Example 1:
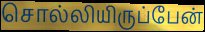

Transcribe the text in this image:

சொல்லியிருப்பேன்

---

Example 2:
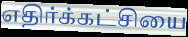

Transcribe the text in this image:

எதிர்க்கட்சியை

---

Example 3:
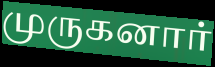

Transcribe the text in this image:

முருகனார்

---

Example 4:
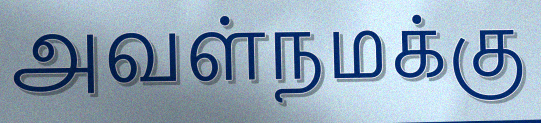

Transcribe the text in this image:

அவள்நமக்கு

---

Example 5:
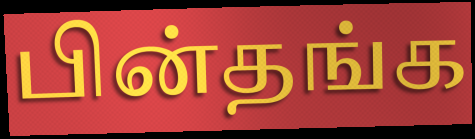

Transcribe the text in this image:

பின்தங்க